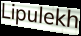
Lipulekh